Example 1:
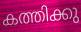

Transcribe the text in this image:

കത്തിക്കു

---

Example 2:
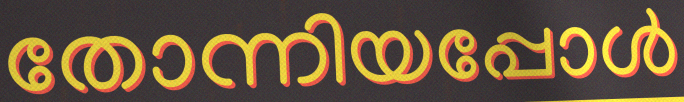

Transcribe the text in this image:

തോന്നിയപ്പോൾ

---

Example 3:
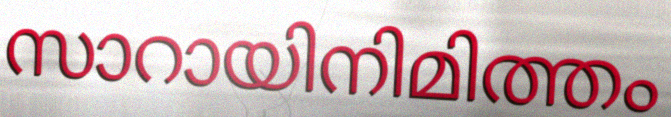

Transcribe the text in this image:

സാറായിനിമിത്തം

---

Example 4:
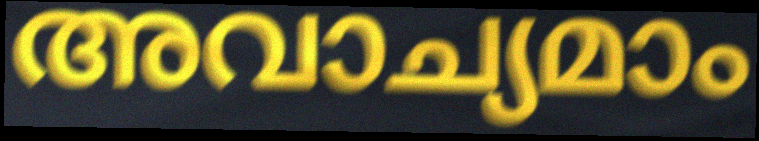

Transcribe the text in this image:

അവാച്യമാം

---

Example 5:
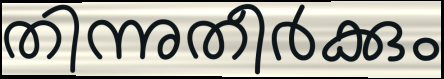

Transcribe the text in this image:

തിന്നുതീർക്കും